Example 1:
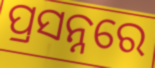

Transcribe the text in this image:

ପ୍ରସନ୍ନରେ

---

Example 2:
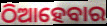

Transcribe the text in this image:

ଠିଆହେବାର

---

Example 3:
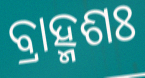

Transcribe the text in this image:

ବ୍ରାହ୍ମଶଃ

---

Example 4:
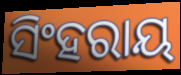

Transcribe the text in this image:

ସିଂହରାୟ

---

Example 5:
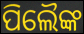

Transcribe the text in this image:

ପିଲୈଙ୍କ